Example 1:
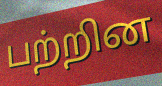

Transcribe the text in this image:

பற்றின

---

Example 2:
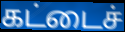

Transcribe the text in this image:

கட்டைச்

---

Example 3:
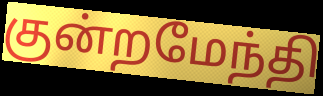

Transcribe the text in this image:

குன்றமேந்தி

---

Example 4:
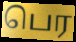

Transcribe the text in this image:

பெர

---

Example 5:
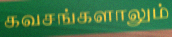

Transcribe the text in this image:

கவசங்களாலும்